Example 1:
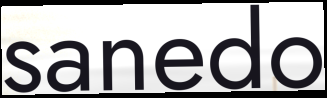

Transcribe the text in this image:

sanedo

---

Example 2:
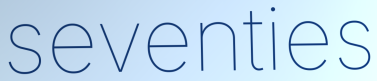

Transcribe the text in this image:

seventies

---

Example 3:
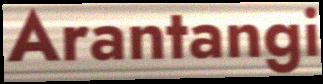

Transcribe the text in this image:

Arantangi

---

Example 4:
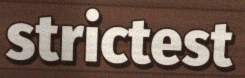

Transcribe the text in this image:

strictest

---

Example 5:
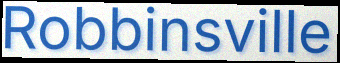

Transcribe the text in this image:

Robbinsville